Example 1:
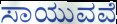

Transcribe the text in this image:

ಸಾಯುವವೆ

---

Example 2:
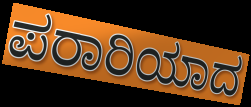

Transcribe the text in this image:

ಪರಾರಿಯಾದ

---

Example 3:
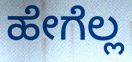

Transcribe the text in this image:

ಹೇಗೆಲ್ಲ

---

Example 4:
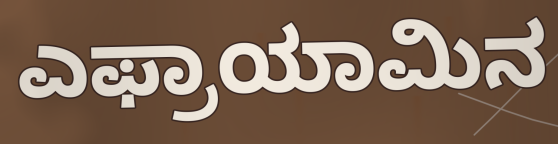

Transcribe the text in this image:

ಎಫ್ರಾಯಾಮಿನ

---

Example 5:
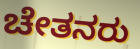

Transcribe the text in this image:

ಚೇತನರು